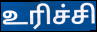
உரிச்சி